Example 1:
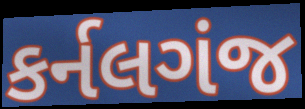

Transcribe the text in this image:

કર્નલગંજ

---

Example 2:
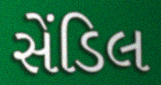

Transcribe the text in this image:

સેંડિલ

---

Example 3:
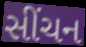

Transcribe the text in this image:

સીંચન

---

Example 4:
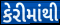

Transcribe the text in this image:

કેરીમાંથી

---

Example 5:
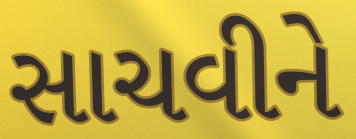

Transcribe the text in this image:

સાચવીને